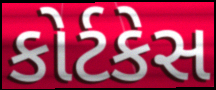
કોર્ટકેસ